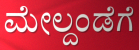
ಮೇಲ್ದಂಡೆಗೆ